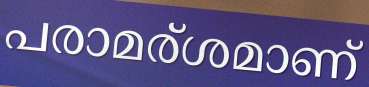
പരാമര്ശമാണ്